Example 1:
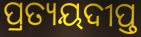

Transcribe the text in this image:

ପ୍ରତ୍ୟୟଦୀପ୍ତ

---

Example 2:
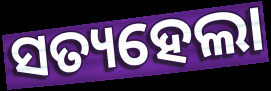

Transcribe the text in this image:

ସତ୍ୟହେଲା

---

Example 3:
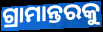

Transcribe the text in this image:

ଗ୍ରାମାନ୍ତରକୁ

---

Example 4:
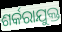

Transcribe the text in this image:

ଶର୍କରାଯୁକ୍ତ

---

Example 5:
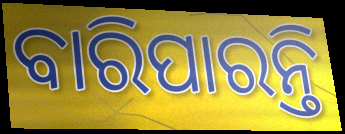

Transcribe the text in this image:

ବାରିପାରନ୍ତି